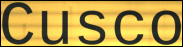
Cusco